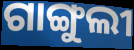
ଗାଙ୍ଗୁଲୀ